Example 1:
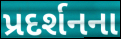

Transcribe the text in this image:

પ્રદર્શનના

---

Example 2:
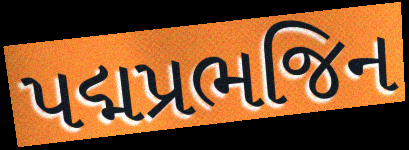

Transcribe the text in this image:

પદ્મપ્રભજિન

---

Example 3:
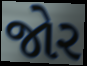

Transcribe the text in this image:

જોર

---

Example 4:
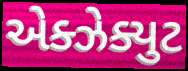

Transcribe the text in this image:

એક્ઝેક્યુટ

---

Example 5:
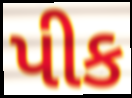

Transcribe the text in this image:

પીક